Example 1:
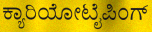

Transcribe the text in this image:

ಕ್ಯಾರಿಯೋಟೈಪಿಂಗ್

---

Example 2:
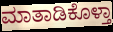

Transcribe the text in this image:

ಮಾತಾಡಿಕೊಳ್ತಾ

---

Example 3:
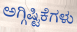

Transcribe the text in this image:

ಅಗ್ಗಿಷ್ಟಿಕೆಗಳು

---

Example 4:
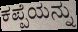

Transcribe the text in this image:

ಕಪ್ಪೆಯನ್ನು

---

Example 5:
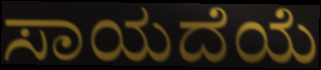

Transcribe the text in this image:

ಸಾಯದೆಯೆ